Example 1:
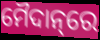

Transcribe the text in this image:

ମୈଦାନ୍‌ରେ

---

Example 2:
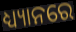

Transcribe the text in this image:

ଧ୍ୟ୍ୟାନରେ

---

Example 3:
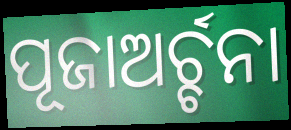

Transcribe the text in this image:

ପୂଜାଅର୍ଚ୍ଚନା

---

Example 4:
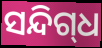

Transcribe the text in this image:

ସନ୍ଦିଗ୍‌ଧ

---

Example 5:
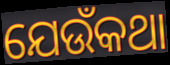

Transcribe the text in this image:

ଯେଉଁକଥା